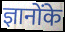
ज्ञानोंके